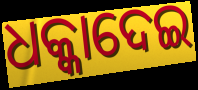
ଧକ୍କାଦେଇ